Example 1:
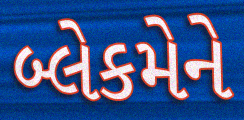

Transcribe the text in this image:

બ્લેકમેને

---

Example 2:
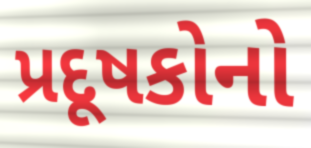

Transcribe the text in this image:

પ્રદૂષકોનો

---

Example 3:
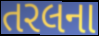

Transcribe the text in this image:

તરલના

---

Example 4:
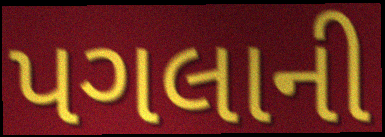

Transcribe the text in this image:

પગલાની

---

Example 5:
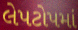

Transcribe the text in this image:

લેપટોપમાં